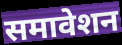
समावेशन